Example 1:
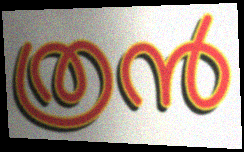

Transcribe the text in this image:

ത്രൻ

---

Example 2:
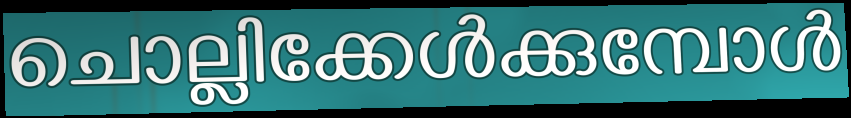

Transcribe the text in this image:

ചൊല്ലിക്കേൾക്കുമ്പോൾ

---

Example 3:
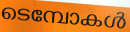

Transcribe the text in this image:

ടെമ്പോകൾ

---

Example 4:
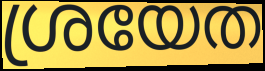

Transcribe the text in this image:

ശ്രയേത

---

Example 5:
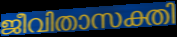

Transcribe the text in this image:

ജീവിതാസക്തി